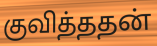
குவித்ததன்